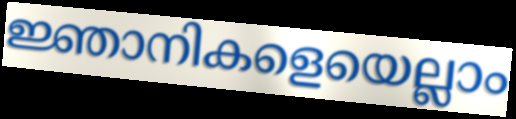
ജ്ഞാനികളെയെല്ലാം